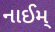
નાઈમ્